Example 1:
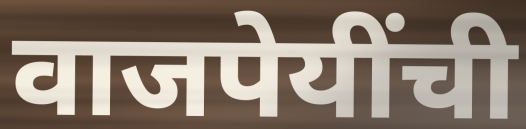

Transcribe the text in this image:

वाजपेयींची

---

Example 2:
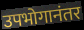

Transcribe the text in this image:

उपभोगानंतर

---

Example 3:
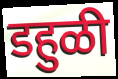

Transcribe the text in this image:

डहुळी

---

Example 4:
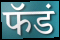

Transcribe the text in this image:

फॅडं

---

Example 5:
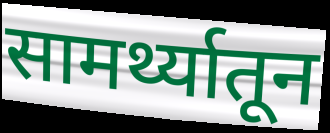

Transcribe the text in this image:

सामर्थ्यातून